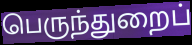
பெருந்துறைப்